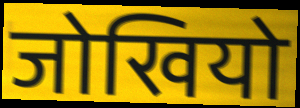
जोखियो